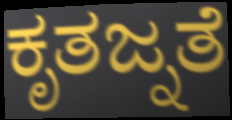
ಕೃತಜ್ನತೆ